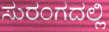
ಸುರಂಗದಲ್ಲಿ